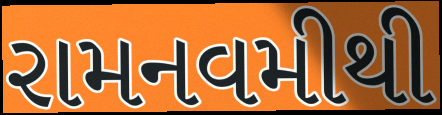
રામનવમીથી